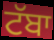
ਟੱਬਾ